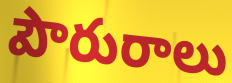
పౌరురాలు